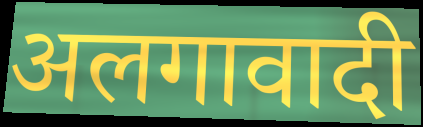
अलगावादी